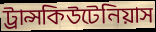
ট্রান্সকিউটেনিয়াস